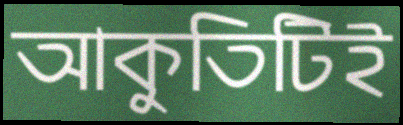
আকুতিটিই